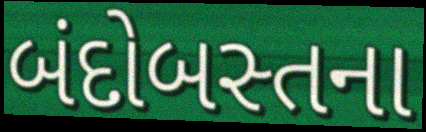
બંદોબસ્તના